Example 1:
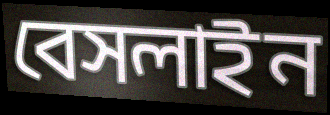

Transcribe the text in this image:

বেসলাইন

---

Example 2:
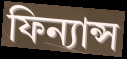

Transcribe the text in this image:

ফিন্যান্স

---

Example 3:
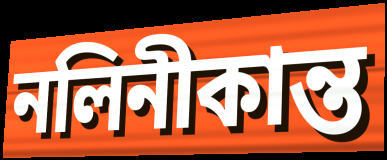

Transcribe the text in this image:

নলিনীকান্ত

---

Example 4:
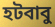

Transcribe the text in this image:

হটবাবু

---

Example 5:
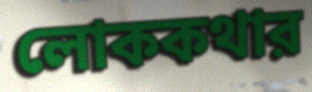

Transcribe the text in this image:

লোককথার